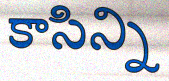
కాసిన్ని